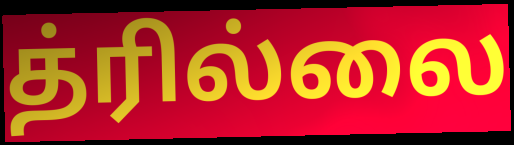
த்ரில்லை